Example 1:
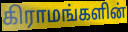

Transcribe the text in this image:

கிராமங்களின்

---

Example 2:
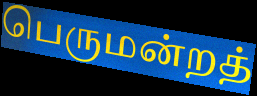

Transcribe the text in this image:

பெருமன்றத்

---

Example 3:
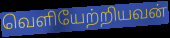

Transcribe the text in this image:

வெளியேற்றியவன்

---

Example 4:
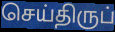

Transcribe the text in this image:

செய்திருப்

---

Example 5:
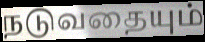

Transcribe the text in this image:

நடுவதையும்